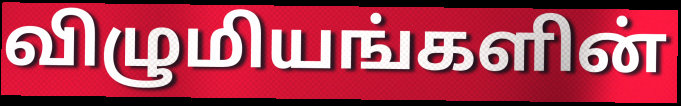
விழுமியங்களின்